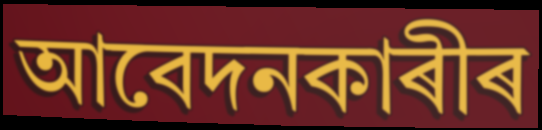
আবেদনকাৰীৰ